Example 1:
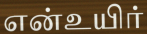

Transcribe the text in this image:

என்உயிர்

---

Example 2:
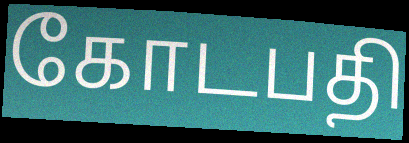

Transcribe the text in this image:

கோடபதி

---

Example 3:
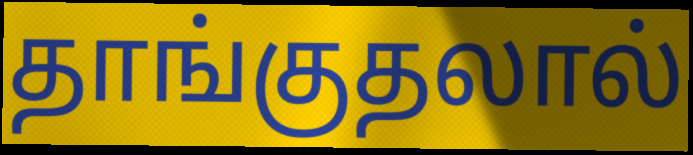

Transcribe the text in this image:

தாங்குதலால்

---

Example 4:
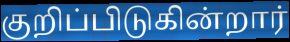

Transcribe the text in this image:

குறிப்பிடுகின்றார்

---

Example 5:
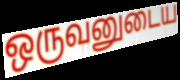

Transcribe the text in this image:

ஒருவனுடைய